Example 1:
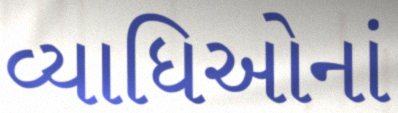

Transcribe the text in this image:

વ્યાધિઓનાં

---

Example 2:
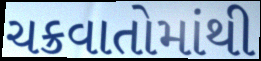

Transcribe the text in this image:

ચક્રવાતોમાંથી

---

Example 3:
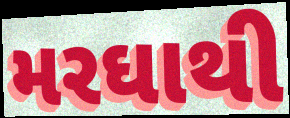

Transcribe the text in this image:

મરઘાથી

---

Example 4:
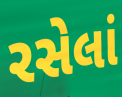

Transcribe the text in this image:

રસેલાં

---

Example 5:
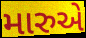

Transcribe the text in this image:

મારુએ